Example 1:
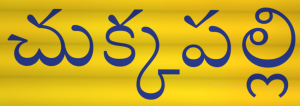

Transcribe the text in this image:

చుక్కపల్లి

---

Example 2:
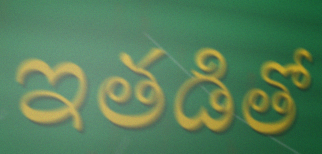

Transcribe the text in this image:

ఇతడితో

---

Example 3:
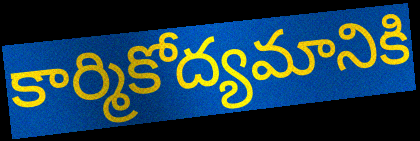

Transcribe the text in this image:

కార్మికోద్యమానికి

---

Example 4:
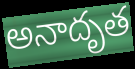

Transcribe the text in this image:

అనాదృత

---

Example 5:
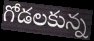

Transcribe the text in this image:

గోడలకున్న